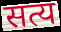
सत्य